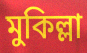
মুকিল্লা